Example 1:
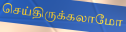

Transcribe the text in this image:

செய்திருக்கலாமோ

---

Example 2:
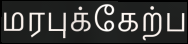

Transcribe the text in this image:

மரபுக்கேற்ப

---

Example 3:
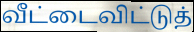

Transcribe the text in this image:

வீட்டைவிட்டுத்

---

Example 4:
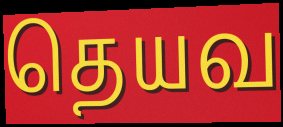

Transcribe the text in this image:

தெயவ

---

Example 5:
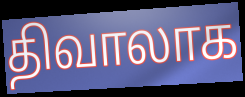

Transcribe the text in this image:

திவாலாக